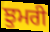
ਝੁਮਰੀ